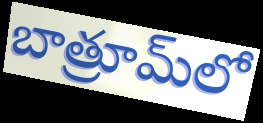
బాత్రూమ్‌లో